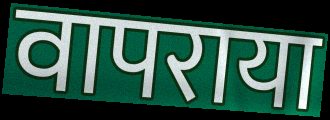
वापराया